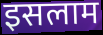
इसलाम